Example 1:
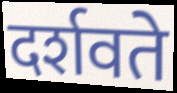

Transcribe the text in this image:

दर्शवते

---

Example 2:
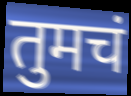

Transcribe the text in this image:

तुमचं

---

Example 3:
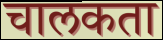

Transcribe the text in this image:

चालकता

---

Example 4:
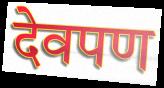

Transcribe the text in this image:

देवपण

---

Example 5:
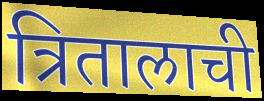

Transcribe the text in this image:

त्रितालाची